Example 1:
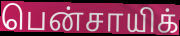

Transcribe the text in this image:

பென்சாயிக்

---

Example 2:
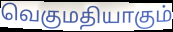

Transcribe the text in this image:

வெகுமதியாகும்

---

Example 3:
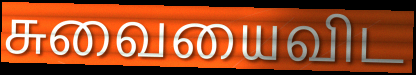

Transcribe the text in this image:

சுவையைவிட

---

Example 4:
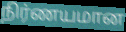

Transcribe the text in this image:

நிர்ணயமான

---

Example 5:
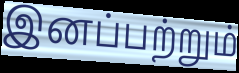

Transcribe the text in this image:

இனப்பற்றும்